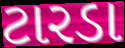
ટારડા